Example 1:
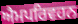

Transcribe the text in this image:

ਐਮਪਰਿਵਹਨ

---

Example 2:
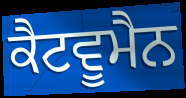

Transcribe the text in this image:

ਕੈਟਵੂਮੈਨ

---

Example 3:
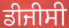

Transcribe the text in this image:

ਡੀਜੀਸੀ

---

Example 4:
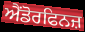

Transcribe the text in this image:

ਐਂਡੋਰਫਿਨਜ਼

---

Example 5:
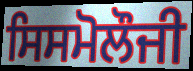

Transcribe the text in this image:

ਸਿਸਮੋਲੌਜੀ